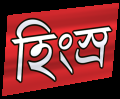
হিংস্র